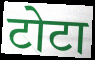
टोटा